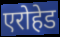
एरोहेड